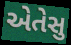
એતેસુ